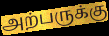
அற்பருக்கு